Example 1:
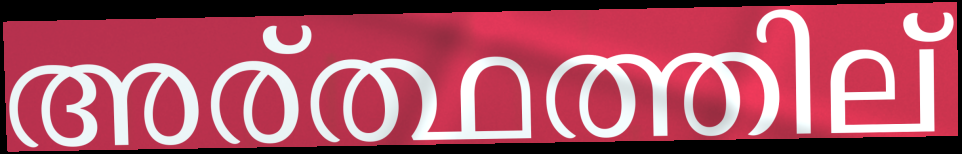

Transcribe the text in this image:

അര്ത്ഥത്തില്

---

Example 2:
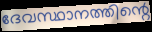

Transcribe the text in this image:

ദേവസ്ഥാനത്തിന്റെ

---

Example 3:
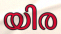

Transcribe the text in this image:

യിര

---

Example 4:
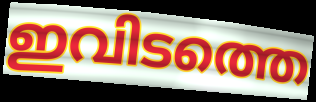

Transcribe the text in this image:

ഇവിടത്തെ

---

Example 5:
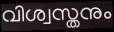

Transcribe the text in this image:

വിശ്വസ്തനും